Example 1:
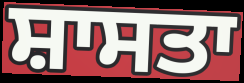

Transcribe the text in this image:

ਸ਼ਾਸਤਾ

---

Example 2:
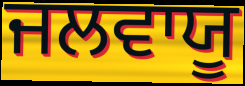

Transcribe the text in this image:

ਜਲਵਾਯੂ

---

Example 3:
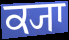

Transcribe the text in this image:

ਕ੍ਯਾ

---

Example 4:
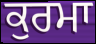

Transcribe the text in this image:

ਕੁਰਮਾ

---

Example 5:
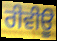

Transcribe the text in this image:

ਰੀਵੀਊ